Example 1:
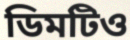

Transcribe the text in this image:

ডিমটিও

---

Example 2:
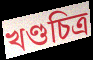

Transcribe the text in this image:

খণ্ডচিত্র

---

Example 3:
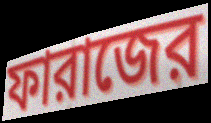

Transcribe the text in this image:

ফারাজের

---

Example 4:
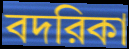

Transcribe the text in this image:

বদরিকা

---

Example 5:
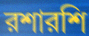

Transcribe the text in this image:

রশারশি